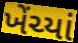
ખેંચ્યાં